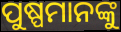
ପୁଷ୍ପମାନଙ୍କୁ